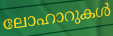
ലോഹാറുകൾ